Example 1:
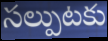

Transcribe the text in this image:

సల్పుటకు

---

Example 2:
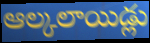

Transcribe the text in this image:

ఆల్కలాయిడ్లు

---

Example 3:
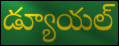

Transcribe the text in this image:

డ్యూయల్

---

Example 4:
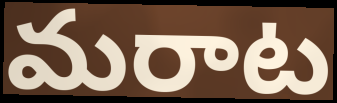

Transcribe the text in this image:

మరాట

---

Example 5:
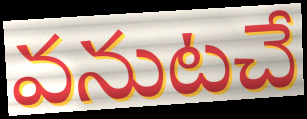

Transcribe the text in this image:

వనుటచే